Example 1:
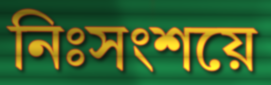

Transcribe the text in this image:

নিঃসংশয়ে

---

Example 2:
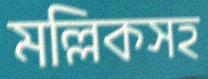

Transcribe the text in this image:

মল্লিকসহ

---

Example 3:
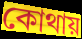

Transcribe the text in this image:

কোথায়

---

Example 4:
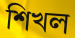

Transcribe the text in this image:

শিখল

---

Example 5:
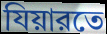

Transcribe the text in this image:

যিয়ারতে